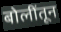
बोलींतून